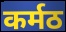
कर्मठ